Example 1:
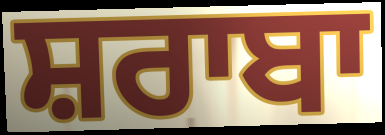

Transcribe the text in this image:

ਸ਼ਰਾਬਾ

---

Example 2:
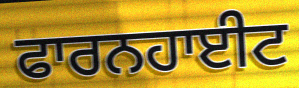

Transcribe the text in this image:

ਫਾਰਨਹਾਈਟ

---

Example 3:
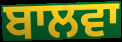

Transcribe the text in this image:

ਬਾਲਵਾ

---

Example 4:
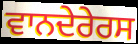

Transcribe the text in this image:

ਵਾਨਦੇਰੇਰਸ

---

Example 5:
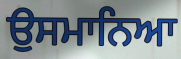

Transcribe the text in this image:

ਉਸਮਾਨਿਆ